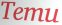
Temu